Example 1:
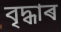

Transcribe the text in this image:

বৃদ্ধাৰ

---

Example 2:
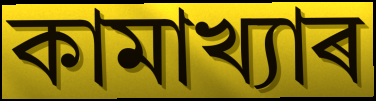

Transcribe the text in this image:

কামাখ্যাৰ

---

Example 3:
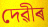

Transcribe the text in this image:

দেৱীৰ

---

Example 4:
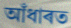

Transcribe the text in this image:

আঁধাৰত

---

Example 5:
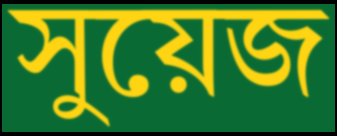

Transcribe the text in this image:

সুয়েজ